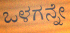
ಒಳಗನ್ನೇ